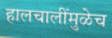
हालचालींमुळेच